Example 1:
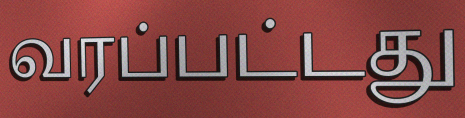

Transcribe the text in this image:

வரப்பட்டது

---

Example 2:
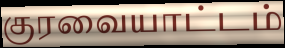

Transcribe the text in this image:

குரவையாட்டம்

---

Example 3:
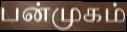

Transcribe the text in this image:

பன்முகம்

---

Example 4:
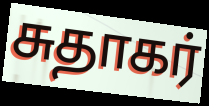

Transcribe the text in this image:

சுதாகர்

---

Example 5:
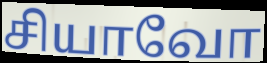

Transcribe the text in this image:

சியாவோ